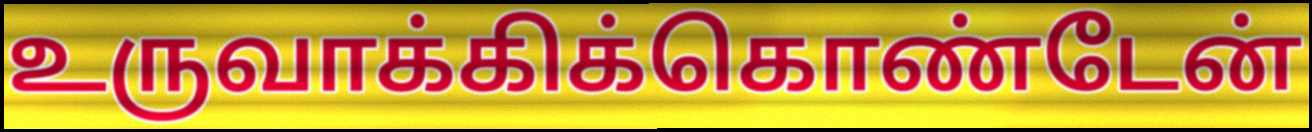
உருவாக்கிக்கொண்டேன்